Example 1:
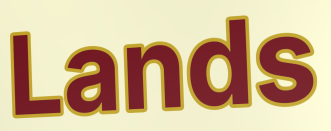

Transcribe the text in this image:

Lands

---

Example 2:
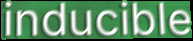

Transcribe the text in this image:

inducible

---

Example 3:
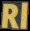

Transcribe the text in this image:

Rl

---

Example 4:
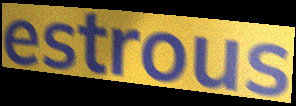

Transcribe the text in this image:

estrous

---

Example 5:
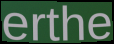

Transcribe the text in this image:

erthe